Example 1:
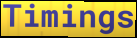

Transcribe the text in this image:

Timings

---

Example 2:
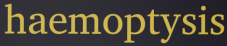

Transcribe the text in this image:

haemoptysis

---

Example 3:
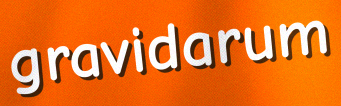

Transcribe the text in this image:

gravidarum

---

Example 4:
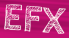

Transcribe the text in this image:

EFX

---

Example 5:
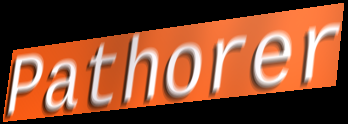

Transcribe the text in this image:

Pathorer